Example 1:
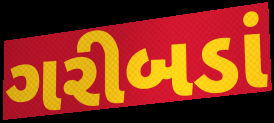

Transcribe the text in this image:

ગરીબડાં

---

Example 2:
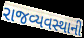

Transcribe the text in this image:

રાજવ્યવસ્થાની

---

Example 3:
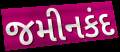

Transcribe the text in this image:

જમીનકંદ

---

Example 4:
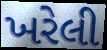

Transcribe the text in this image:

ખરેલી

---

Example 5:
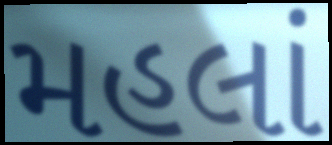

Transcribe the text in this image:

મહલાં